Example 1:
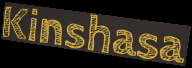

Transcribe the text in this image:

Kinshasa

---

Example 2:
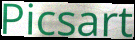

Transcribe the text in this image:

Picsart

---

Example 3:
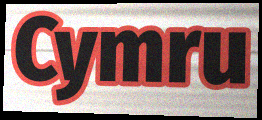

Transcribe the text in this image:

Cymru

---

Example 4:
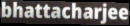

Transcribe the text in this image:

bhattacharjee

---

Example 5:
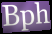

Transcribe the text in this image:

Bph